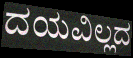
ದಯವಿಲ್ಲದ